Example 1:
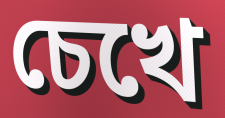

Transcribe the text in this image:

চেখে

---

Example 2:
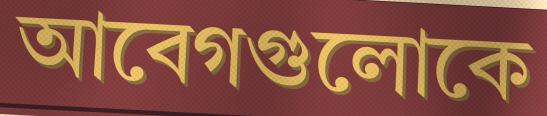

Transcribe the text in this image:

আবেগগুলোকে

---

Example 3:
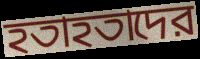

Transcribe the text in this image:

হতাহতাদের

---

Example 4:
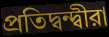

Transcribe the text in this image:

প্রতিদ্বন্দ্বীরা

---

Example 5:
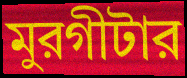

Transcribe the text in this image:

মুরগীটার